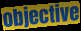
objective